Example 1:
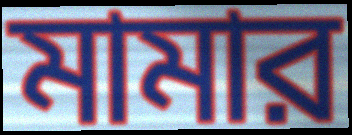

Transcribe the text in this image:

মামার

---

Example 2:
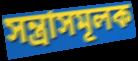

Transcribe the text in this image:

সন্ত্রাসমূলক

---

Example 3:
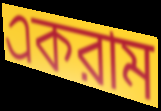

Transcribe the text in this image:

একরাম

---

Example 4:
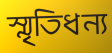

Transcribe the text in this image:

স্মৃতিধন্য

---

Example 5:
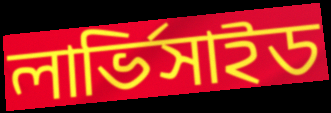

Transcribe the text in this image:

লার্ভিসাইড